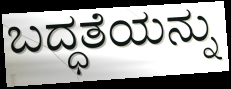
ಬದ್ಧತೆಯನ್ನು